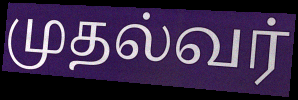
முதல்வர்